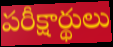
పరీక్షార్థులు